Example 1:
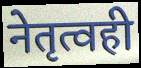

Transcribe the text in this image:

नेतृत्वही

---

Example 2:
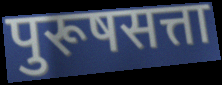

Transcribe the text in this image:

पुरूषसत्ता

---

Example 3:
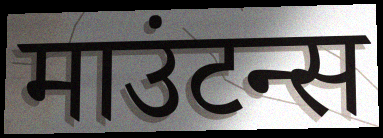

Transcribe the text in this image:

माउंटन्स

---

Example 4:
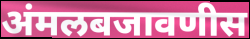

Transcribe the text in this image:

अंमलबजावणीस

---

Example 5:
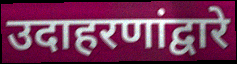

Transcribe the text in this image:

उदाहरणांद्वारे